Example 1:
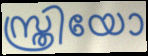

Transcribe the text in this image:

സ്ത്രിയോ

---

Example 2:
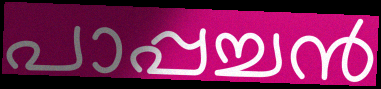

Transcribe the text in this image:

പാപ്പച്ചൻ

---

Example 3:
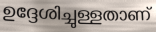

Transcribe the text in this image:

ഉദ്ദേശിച്ചുള്ളതാണ്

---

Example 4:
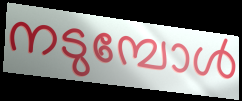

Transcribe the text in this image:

നടുമ്പോൾ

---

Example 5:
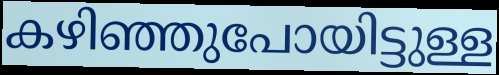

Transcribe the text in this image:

കഴിഞ്ഞുപോയിട്ടുള്ള